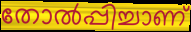
തോൽപ്പിച്ചാണ്